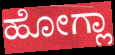
ಹೋಗ್ಲಾ